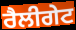
ਰੈਲੀਗੇਟ